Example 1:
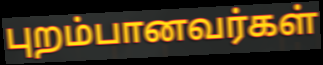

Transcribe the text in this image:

புறம்பானவர்கள்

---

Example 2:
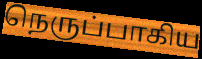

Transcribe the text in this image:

நெருப்பாகிய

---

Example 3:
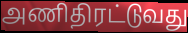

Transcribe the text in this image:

அணிதிரட்டுவது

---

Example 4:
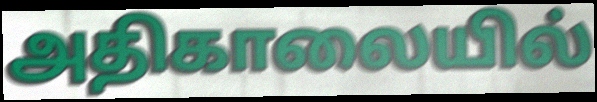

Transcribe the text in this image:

அதிகாலையில்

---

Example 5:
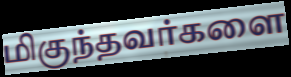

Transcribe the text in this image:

மிகுந்தவர்களை